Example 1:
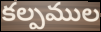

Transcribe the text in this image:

కల్పముల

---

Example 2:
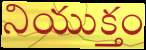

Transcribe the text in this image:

నియుక్తం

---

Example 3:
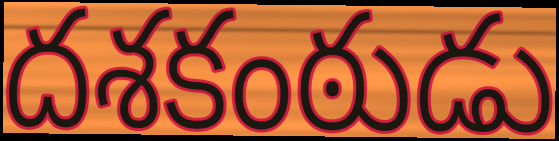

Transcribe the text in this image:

దశకంఠుడు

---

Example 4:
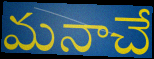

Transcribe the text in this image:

మనాచే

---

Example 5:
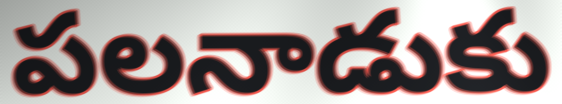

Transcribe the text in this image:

పలనాడుకు